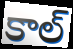
కాల్